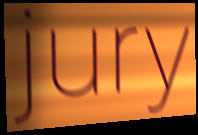
jury